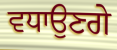
ਵਧਾਉਣਗੇ